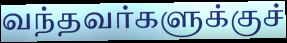
வந்தவர்களுக்குச்